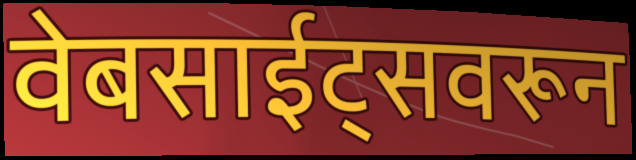
वेबसाईट्सवरून